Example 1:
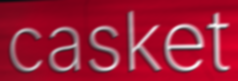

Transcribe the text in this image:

casket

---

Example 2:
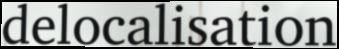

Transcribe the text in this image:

delocalisation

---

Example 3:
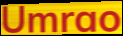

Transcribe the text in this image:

Umrao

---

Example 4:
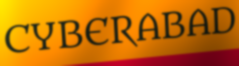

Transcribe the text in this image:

CYBERABAD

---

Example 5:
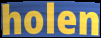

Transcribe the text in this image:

holen